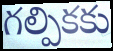
గల్పికకు